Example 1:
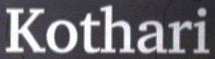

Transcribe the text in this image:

Kothari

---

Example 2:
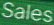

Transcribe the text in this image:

Sales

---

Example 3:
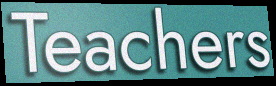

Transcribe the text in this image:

Teachers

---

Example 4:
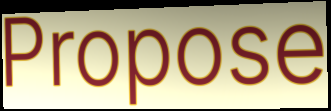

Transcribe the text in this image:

Propose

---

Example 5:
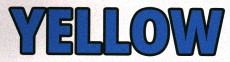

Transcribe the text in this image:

YELLOW